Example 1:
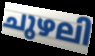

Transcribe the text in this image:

ചുഴലി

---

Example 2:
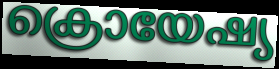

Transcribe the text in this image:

ക്രൊയേഷ്യ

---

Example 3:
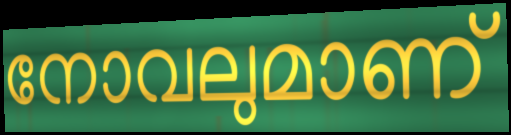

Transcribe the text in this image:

നോവലുമാണ്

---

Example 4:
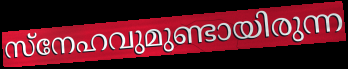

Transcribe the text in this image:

സ്നേഹവുമുണ്ടായിരുന്ന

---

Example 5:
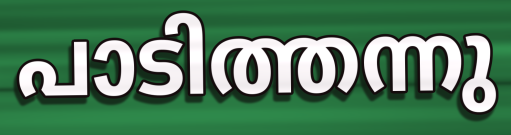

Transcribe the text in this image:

പാടിത്തന്നു